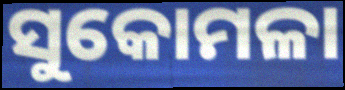
ସୁକୋମଳା